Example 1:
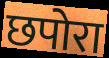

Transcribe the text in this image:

छपोरा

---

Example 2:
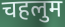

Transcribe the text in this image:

चहलुम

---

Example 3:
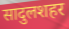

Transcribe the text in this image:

सादुलशहर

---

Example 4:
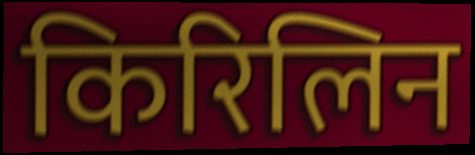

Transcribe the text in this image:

किरिलिन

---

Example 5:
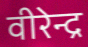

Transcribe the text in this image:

वीरेन्‍द्र